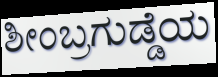
ಶೀಂಬ್ರಗುಡ್ಡೆಯ